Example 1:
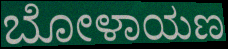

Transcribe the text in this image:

ಬೋಳಾಯಣ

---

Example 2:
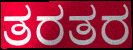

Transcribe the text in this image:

ತರತರ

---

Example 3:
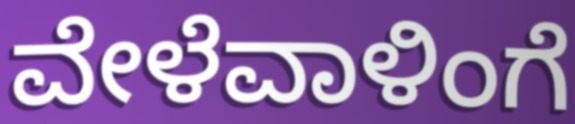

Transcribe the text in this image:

ವೇಳೆವಾಳಿಂಗೆ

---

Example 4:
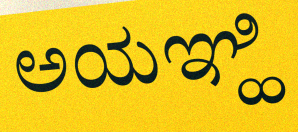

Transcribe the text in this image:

ಅಯಞ್ಹಿ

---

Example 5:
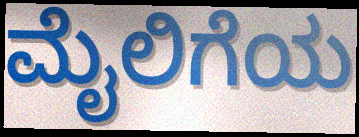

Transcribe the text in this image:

ಮೈಲಿಗೆಯ